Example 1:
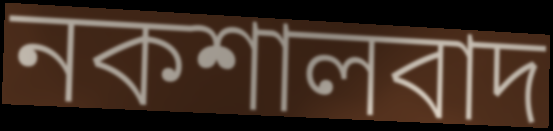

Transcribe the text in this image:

নকশালবাদ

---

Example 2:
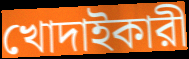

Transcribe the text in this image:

খোদাইকারী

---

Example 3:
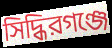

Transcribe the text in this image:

সিদ্ধিরগঞ্জে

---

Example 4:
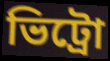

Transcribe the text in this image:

ভিট্রো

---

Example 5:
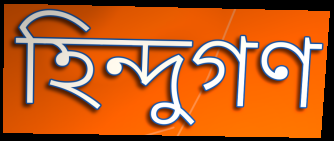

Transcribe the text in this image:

হিন্দুগণ